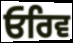
ਓਰਿਵ